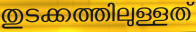
തുടക്കത്തിലുള്ളത്